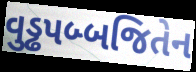
વુડ્ઢપબ્બજિતેન